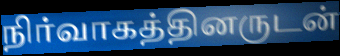
நிர்வாகத்தினருடன்